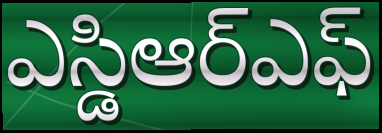
ఎస్డిఆర్ఎఫ్